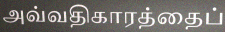
அவ்வதிகாரத்தைப்